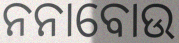
ନନାବୋଉ